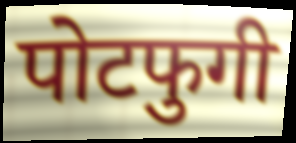
पोटफुगी